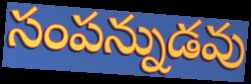
సంపన్నుడవు